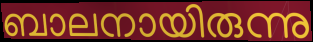
ബാലനായിരുന്നു